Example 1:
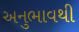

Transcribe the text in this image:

અનુભાવથી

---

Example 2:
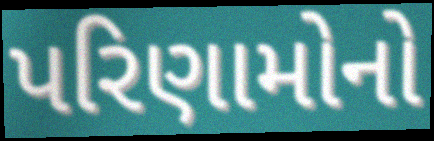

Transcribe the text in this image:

પરિણામોનો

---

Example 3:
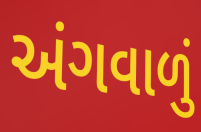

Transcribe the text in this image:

અંગવાળું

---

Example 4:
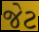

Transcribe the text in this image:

જેટ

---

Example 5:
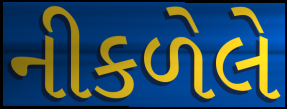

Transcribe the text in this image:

નીકળેલે